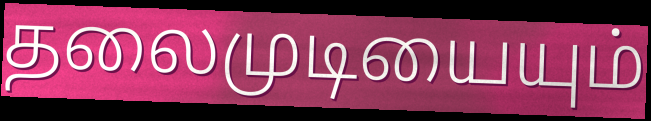
தலைமுடியையும்